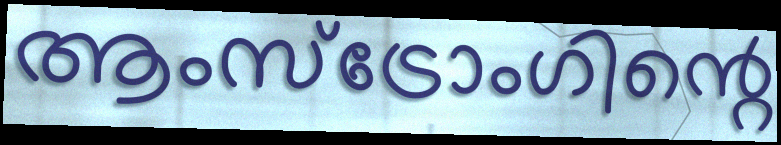
ആംസ്ട്രോംഗിന്റെ